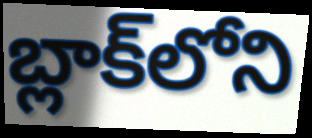
బ్లాక్‌లోని